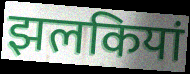
झलकियां